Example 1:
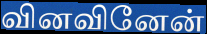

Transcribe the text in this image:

வினவினேன்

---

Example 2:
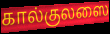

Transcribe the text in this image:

கால்குலஸை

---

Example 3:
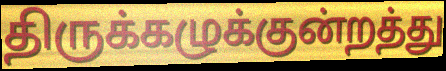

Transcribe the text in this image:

திருக்கழுக்குன்றத்து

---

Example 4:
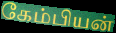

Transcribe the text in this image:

கேம்பியன்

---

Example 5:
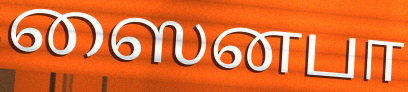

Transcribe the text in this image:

ஸைனபா